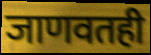
जाणवतही